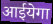
आईयेगा